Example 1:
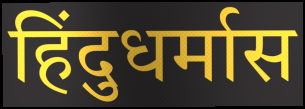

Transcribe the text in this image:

हिंदुधर्मास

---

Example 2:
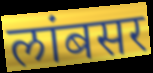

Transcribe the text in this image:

लांबसर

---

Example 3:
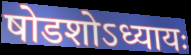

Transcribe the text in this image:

षोडशोऽध्यायः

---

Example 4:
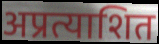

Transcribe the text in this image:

अप्रत्याशित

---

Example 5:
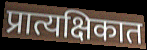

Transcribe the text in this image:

प्रात्यक्षिकात